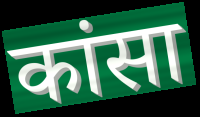
कांसा